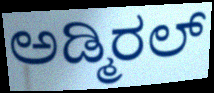
ಅಡ್ಮಿರಲ್